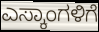
ಎಸ್ಕಾಂಗಳಿಗೆ